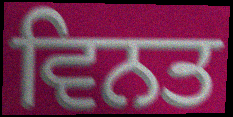
ਵਿਨਤ